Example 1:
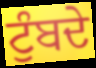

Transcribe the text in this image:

ਟੁੰਬਦੇ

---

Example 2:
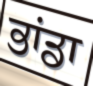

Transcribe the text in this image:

ਭਾਂਡਾ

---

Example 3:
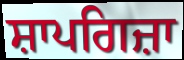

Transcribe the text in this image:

ਸ਼ਾਪਗਿਜ਼ਾ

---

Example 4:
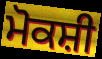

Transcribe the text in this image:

ਮੋਕਸ਼ੀ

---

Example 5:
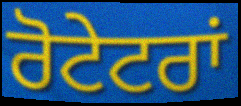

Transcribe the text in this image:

ਰੋਟੇਟਰਾਂ